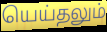
யெய்தலும்